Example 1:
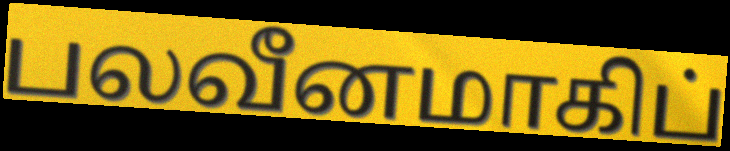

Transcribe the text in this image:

பலவீனமாகிப்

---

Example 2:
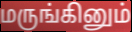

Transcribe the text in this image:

மருங்கினும்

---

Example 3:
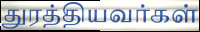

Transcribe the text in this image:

துரத்தியவர்கள்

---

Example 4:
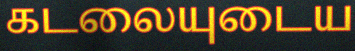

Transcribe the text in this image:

கடலையுடைய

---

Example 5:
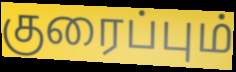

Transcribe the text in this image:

குரைப்பும்